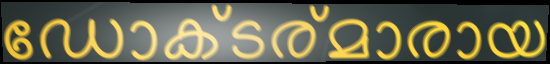
ഡോക്ടര്മാരായ